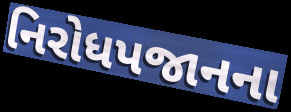
નિરોધપજાનના